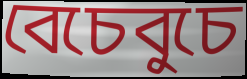
বেচেবুচে